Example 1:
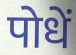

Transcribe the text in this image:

पोधें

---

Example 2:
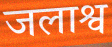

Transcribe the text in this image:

जलाश्व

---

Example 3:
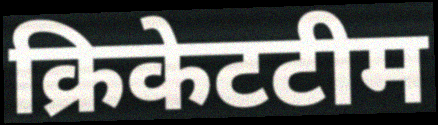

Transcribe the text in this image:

क्रिकेटटीम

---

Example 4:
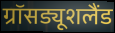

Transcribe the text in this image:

ग्रॉसड्यूशलैंड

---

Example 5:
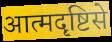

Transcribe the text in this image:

आत्मदृष्टिसे